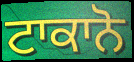
ਟਾਕਾਨੋ